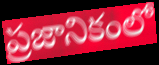
ప్రజానికంలో